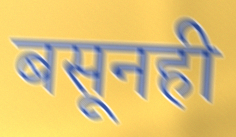
बसूनही